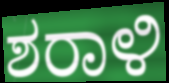
ಶರಾಳಿ